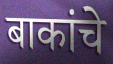
बाकांचे